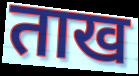
ताख